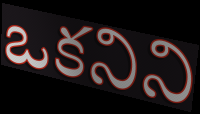
ఒకనిని